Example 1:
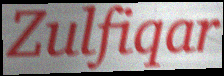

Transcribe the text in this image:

Zulfiqar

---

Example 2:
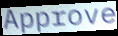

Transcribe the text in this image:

Approve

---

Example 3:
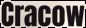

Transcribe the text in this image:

Cracow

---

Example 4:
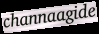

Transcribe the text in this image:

channaagide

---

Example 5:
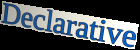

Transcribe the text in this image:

Declarative